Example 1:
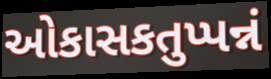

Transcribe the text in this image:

ઓકાસકતુપ્પન્નં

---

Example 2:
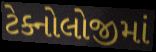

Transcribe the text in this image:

ટેક્નોલોજીમાં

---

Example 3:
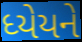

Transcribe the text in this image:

ધ્યેયને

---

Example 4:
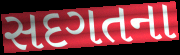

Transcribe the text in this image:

સદગતના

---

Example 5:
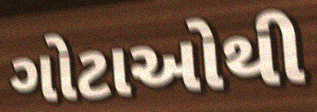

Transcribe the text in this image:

ગોટાઓથી